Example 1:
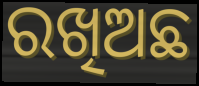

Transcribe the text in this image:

ରଖିଅଛ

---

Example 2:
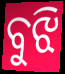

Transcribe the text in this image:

ବୁଝି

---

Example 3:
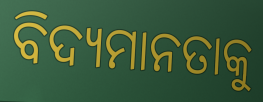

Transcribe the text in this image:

ବିଦ୍ୟମାନତାକୁ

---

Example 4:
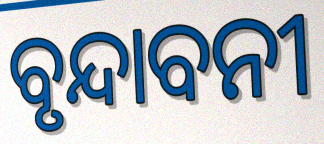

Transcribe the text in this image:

ବୃନ୍ଦାବନୀ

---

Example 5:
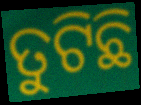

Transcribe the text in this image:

ତୁଟିଛି